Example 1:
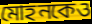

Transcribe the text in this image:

মোহনকেও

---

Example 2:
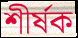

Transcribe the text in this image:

শীর্ষক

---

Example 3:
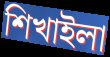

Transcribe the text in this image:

শিখাইলা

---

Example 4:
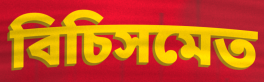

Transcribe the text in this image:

বিচিসমেত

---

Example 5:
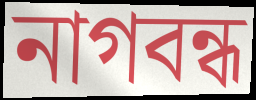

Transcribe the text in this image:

নাগবন্ধ